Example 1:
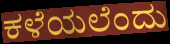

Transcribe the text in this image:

ಕಳೆಯಲೆಂದು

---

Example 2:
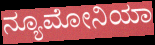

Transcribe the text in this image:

ನ್ಯೂಮೋನಿಯಾ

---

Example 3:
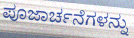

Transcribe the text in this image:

ಪೂಜಾರ್ಚನೆಗಳನ್ನು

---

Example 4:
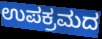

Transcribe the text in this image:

ಉಪಕ್ರಮದ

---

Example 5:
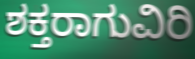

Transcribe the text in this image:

ಶಕ್ತರಾಗುವಿರಿ